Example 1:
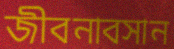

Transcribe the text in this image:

জীবনাবসান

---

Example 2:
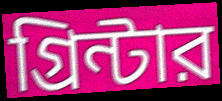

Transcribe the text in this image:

গ্রিন্টার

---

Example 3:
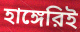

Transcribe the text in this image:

হাঙ্গেরিই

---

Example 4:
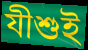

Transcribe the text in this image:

যীশুই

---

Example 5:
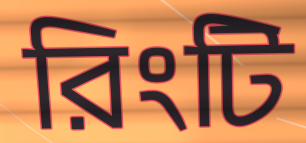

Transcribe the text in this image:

রিংটি